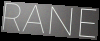
RANE